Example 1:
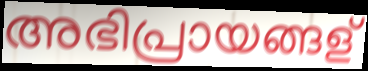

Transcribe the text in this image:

അഭിപ്രായങ്ങള്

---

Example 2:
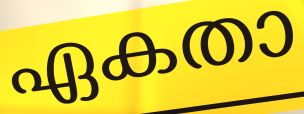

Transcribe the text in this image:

ഏകതാ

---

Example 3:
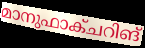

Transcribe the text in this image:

മാനുഫാക്ചറിങ്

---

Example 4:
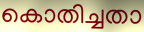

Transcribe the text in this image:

കൊതിച്ചതാ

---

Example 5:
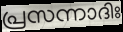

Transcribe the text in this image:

പ്രസന്നാദിഃ